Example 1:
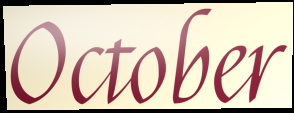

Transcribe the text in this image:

October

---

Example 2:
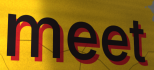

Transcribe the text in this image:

meet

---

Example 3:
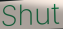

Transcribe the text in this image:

Shut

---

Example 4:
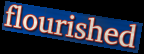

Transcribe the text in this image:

flourished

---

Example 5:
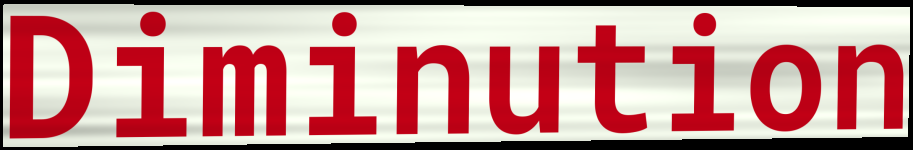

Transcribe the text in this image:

Diminution